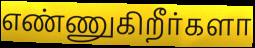
எண்ணுகிறீர்களா